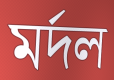
মর্দল